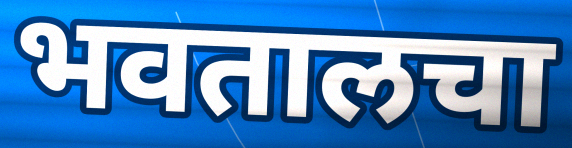
भवतालचा